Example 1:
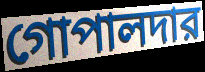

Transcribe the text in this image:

গোপালদার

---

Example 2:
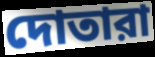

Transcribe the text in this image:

দোতারা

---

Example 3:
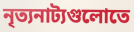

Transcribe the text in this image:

নৃত্যনাট্যগুলোতে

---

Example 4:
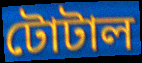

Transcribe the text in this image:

টোটাল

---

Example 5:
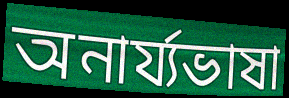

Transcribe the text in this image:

অনার্য্যভাষা